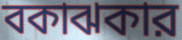
বকাঝকার